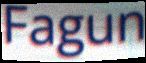
Fagun